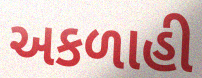
અકળાહી